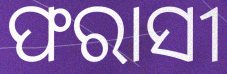
ଫରାସୀ